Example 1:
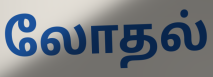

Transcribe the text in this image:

லோதல்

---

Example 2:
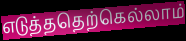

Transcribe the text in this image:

எடுத்ததெற்கெல்லாம்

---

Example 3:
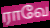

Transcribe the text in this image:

ராவே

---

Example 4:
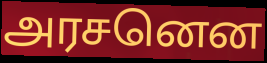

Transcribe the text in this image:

அரசனென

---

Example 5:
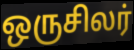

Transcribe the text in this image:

ஒருசிலர்